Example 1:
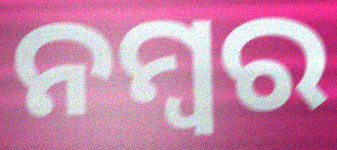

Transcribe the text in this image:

ନମ୍ବର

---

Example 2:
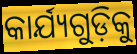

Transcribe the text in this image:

କାର୍ଯ୍ୟଗୁଡ଼ିକୁ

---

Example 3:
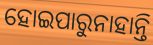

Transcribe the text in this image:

ହୋଇପାରୁନାହାନ୍ତି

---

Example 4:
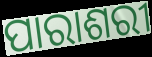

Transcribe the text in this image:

ପାରାଶରୀ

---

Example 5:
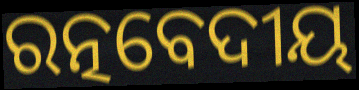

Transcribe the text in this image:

ରତ୍ନବେଦୀୟ